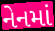
નેનમાં